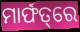
ମାର୍ଫତ୍‌ରେ